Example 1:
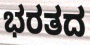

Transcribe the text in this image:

ಭರತದ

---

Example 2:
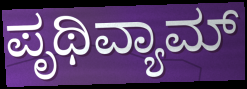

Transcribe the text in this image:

ಪೃಥಿವ್ಯಾಮ್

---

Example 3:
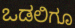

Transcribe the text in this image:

ಒಡಲಿಗೂ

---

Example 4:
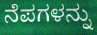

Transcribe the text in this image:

ನೆಪಗಳನ್ನು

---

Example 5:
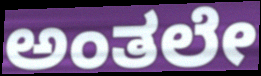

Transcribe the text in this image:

ಅಂತಲೇ